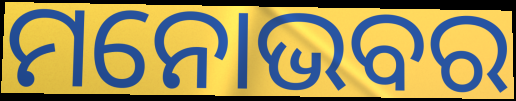
ମନୋଭବର